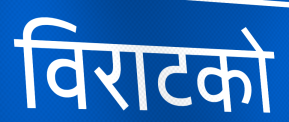
विराटको